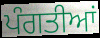
ਪੰਗਤੀਆਂ